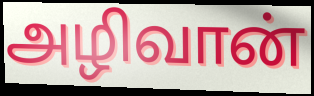
அழிவான்